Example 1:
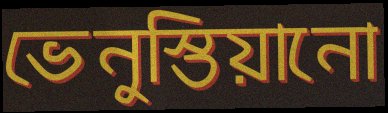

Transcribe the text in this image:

ভেনুস্তিয়ানো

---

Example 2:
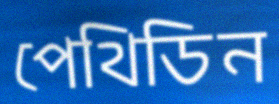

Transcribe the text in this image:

পেথিডিন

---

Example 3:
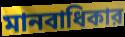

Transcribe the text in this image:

মানবাধিকার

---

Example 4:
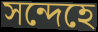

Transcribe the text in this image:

সন্দেহে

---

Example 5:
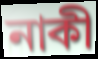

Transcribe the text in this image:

নাকী